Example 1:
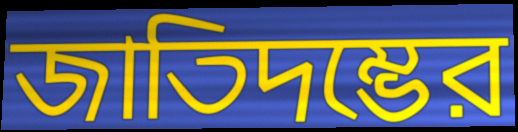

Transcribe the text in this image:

জাতিদম্ভের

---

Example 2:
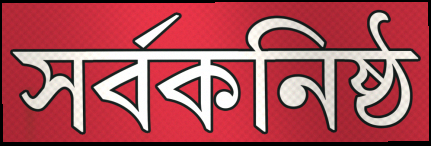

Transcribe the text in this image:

সর্বকনিষ্ঠ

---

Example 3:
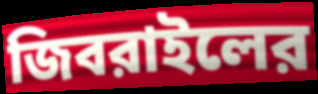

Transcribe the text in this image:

জিবরাইলের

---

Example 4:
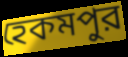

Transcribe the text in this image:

হেকমপুর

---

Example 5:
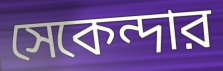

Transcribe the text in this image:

সেকেন্দার